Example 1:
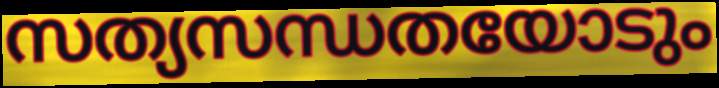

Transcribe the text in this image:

സത്യസന്ധതയോടും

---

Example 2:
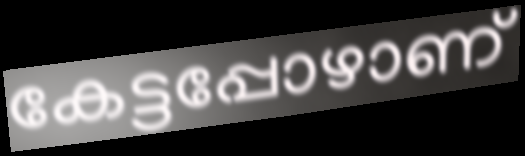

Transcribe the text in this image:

കേട്ടപ്പോഴാണ്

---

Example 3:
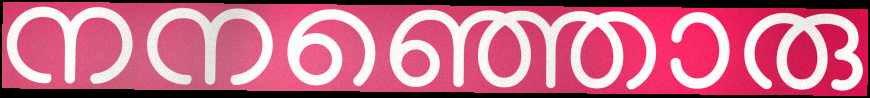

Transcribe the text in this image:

നനഞ്ഞൊരു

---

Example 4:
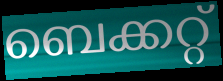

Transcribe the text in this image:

ബെക്കറ്റ്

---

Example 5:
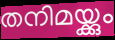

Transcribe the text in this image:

തനിമയ്ക്കും